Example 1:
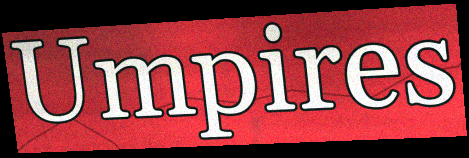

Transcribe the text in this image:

Umpires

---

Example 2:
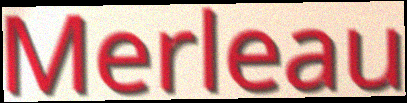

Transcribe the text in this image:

Merleau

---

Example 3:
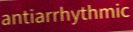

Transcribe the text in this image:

antiarrhythmic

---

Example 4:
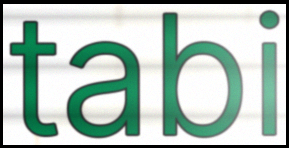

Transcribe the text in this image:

tabi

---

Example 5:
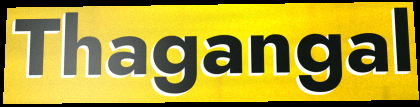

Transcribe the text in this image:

Thagangal